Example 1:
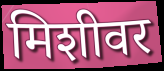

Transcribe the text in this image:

मिशीवर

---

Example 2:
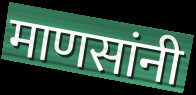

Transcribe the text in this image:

माणसांनी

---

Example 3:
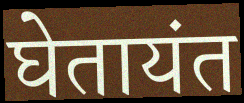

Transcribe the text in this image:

घेतायंत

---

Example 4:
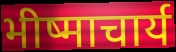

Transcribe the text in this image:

भीष्माचार्य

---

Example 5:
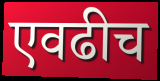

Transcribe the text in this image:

एवढीच